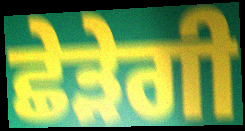
ਛੇੜੇਗੀ